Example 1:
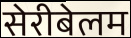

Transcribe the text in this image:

सेरीबेलम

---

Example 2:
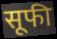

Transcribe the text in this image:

सूफी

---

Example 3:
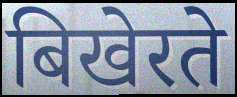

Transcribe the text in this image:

बिखेरते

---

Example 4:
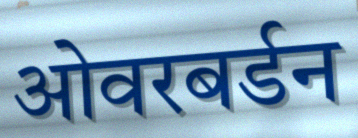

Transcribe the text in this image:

ओवरबर्डन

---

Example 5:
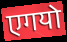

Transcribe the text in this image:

एगयो